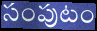
సంపుటం